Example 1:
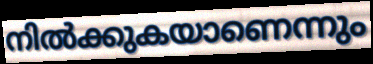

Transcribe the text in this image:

നിൽക്കുകയാണെന്നും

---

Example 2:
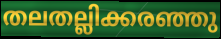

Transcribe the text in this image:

തലതല്ലിക്കരഞ്ഞു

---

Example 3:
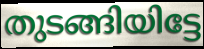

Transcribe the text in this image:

തുടങ്ങിയിട്ടേ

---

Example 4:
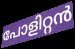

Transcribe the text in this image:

പോളിറ്റൻ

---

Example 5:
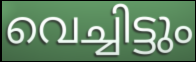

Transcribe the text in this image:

വെച്ചിട്ടും